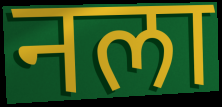
नला